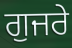
ਗੁਜਰੇ